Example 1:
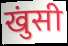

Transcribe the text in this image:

खुंसी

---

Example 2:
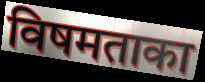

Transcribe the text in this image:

विषमताका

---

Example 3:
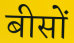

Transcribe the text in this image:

बीसों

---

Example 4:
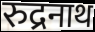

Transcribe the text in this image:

रुद्रनाथ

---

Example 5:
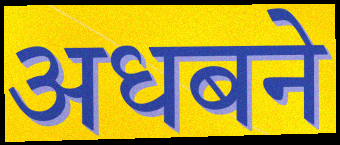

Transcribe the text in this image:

अधबने